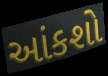
આંકશો